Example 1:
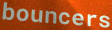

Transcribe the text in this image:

bouncers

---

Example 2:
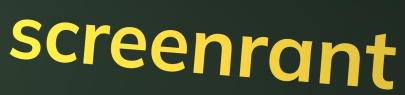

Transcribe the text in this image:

screenrant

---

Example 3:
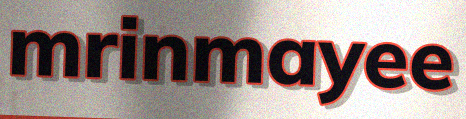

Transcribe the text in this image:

mrinmayee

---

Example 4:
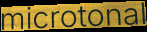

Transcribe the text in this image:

microtonal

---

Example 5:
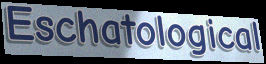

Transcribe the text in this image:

Eschatological